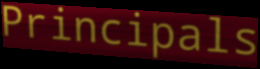
Principals